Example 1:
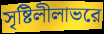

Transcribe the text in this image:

সৃষ্টিলীলাভরে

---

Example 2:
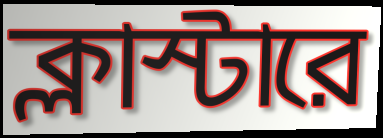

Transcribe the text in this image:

ক্লাস্টারে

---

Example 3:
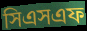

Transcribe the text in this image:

সিএসএফ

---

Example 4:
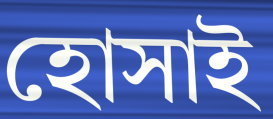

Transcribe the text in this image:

হোসাই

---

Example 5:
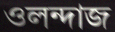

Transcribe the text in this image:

ওলন্দাজ